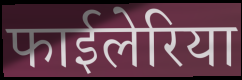
फाईलेरिया